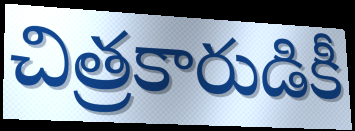
చిత్రకారుడికీ